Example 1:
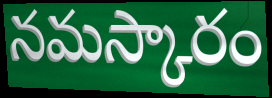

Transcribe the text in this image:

నమస్కారం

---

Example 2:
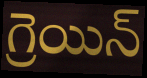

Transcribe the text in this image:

గ్రెయిన్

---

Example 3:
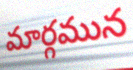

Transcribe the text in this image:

మార్గమున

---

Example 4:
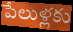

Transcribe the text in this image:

పేలుళ్లకు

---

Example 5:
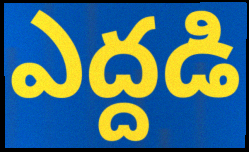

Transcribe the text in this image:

ఎద్దడి